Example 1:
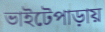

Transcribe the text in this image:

ভাইটেপাড়ায়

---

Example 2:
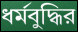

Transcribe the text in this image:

ধর্মবুদ্ধির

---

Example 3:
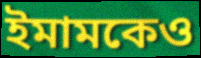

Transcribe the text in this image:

ইমামকেও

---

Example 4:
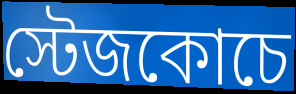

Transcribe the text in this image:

স্টেজকোচে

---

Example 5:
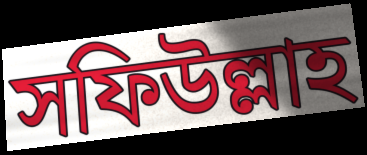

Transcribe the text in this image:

সফিউল্লাহ